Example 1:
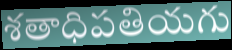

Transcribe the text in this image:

శతాధిపతియగు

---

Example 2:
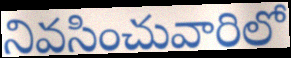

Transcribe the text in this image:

నివసించువారిలో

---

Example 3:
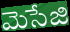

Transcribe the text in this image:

మెసేజి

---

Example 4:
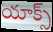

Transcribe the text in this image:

యాక్స్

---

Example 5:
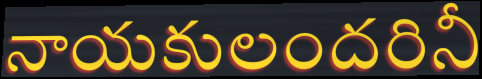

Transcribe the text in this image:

నాయకులందరినీ